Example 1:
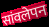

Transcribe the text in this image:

सांवलेपन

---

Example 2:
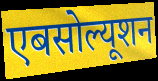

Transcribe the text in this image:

एबसोल्यूशन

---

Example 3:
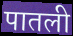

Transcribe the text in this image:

पातली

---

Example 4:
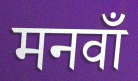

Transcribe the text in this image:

मनवाँ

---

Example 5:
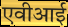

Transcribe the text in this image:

एवीआई